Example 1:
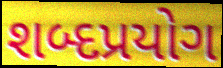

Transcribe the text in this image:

શબ્દપ્રયોગ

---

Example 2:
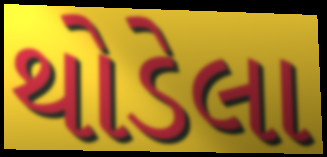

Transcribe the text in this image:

થોડેલા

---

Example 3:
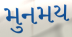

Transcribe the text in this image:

મુનમય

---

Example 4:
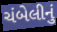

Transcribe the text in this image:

ચંબેલીનું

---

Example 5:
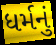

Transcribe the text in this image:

ધર્મનું